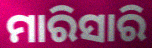
ମାରିସାରି